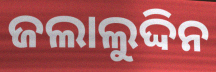
ଜଲାଲୁଦ୍ଦିନ